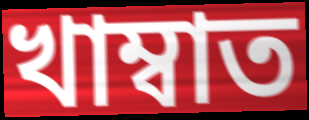
খাম্বাত